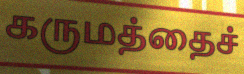
கருமத்தைச்